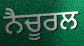
ਨੈਚੂਰਲ